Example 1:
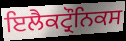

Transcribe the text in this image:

ਇਲੈਕਟ੍ਰੌਨਿਕਸ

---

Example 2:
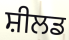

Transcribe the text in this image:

ਸ਼ੀਲਡ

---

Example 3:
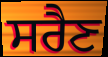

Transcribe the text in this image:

ਸਰੈਣ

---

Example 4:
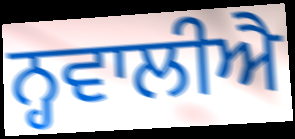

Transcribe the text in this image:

ਨ੍ਹਵਾਲੀਐ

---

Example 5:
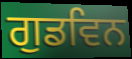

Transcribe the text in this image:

ਗੁਡਵਿਨ